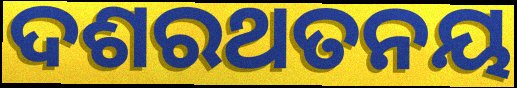
ଦଶରଥତନୟ